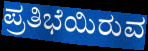
ಪ್ರತಿಭೆಯಿರುವ